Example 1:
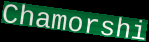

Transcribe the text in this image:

Chamorshi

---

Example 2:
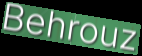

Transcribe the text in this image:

Behrouz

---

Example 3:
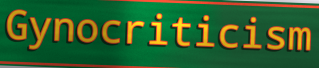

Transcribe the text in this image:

Gynocriticism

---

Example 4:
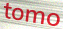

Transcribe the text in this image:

tomo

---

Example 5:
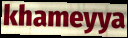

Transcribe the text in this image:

khameyya